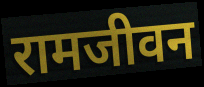
रामजीवन